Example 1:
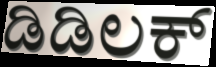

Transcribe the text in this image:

ಡಿಡಿಲಕ್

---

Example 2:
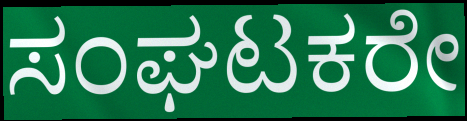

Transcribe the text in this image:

ಸಂಘಟಕರೇ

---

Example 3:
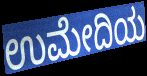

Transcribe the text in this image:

ಉಮೇದಿಯ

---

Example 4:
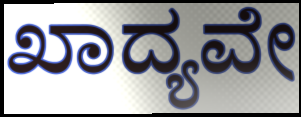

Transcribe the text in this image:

ಖಾದ್ಯವೇ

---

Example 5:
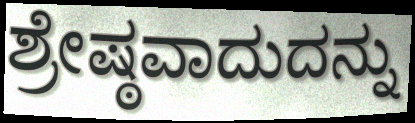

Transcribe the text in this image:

ಶ್ರೇಷ್ಠವಾದುದನ್ನು